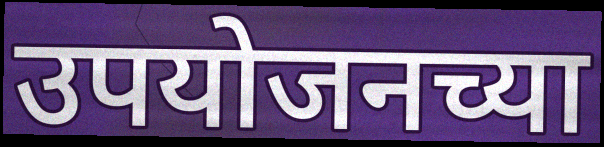
उपयोजनच्या